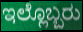
ಇಲ್ಲೊಬ್ಬರು